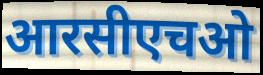
आरसीएचओ